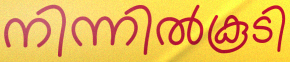
നിന്നിൽകൂടി